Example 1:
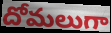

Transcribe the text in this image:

దోమలుగా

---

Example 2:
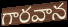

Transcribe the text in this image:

గారవాన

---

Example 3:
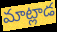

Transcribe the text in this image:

మాట్లాడ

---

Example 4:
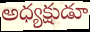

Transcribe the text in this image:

అధ్యక్షుడూ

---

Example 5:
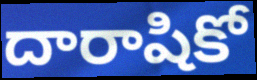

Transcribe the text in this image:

దారాషికో